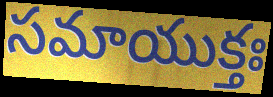
సమాయుక్తః